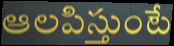
ఆలపిస్తుంటే